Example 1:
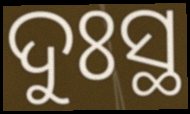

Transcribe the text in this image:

ଦୁଃସ୍ଥ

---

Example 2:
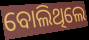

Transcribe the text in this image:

ବୋଲିଥିଲେ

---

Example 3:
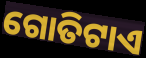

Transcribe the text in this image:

ଗୋତିଟାଏ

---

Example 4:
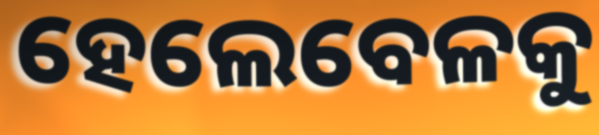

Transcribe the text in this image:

ହେଲେବେଳକୁ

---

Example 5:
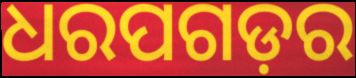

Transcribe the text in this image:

ଧରପଗଡ଼ର